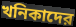
খনিকাদের